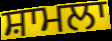
ਸ਼ਾਮਲਾ